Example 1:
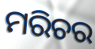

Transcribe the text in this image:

ମରିଚର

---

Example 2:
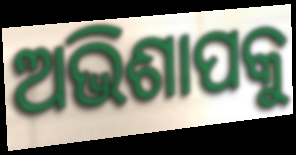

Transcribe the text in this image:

ଅଭିଶାପକୁ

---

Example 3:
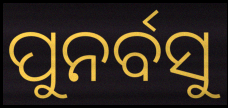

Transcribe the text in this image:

ପୁନର୍ବସୁ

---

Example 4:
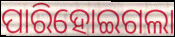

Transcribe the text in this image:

ପାରିହୋଇଗଲା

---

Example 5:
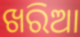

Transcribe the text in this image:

ଖରିଆ